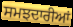
ਸਮਝਦਾਰੀਆਂ